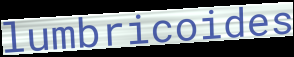
lumbricoides